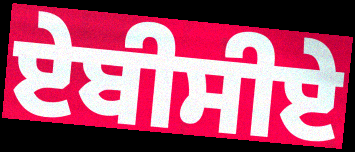
ਏਬੀਸੀਏ